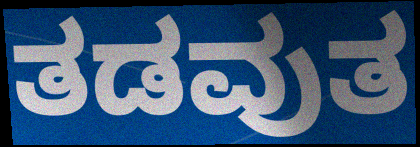
ತಡವುತ